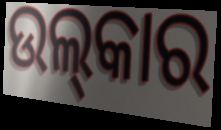
ଉଲ୍‍କାର